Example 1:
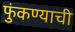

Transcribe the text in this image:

फुंकण्याची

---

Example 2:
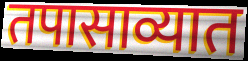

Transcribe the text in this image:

तपासाव्यात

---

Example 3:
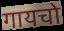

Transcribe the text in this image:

गायचो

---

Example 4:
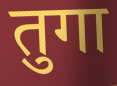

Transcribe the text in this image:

तुगा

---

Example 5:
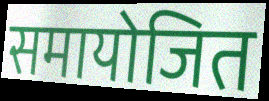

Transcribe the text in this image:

समायोजित